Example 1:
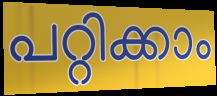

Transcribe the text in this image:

പറ്റിക്കാം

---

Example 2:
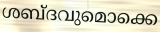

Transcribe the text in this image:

ശബ്ദവുമൊക്കെ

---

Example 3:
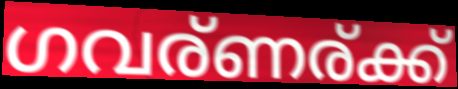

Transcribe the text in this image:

ഗവര്ണര്ക്ക്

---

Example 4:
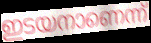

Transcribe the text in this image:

ഇടയനാണെന്ന്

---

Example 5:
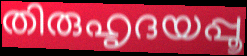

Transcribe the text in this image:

തിരുഹൃദയപ്പൂ